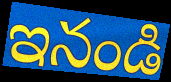
ఇనండి